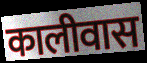
कालीवास